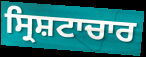
ਸ੍ਰਿਸ਼ਟਾਚਾਰ